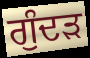
ਗੁੰਦੜ